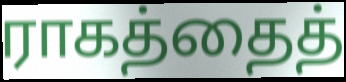
ராகத்தைத்